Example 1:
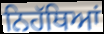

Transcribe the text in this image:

ਨਿਹੱਥਿਆਂ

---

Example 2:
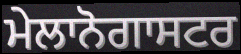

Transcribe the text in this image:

ਮੇਲਾਨੋਗਾਸਟਰ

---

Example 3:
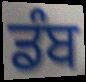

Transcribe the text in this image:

ਡੰਬ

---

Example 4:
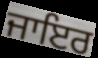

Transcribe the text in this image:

ਜਾਇਰ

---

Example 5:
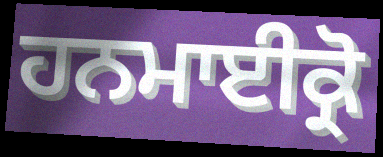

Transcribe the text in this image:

ਹਨਮਾਈਕ੍ਰੋ